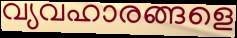
വ്യവഹാരങ്ങളെ